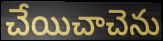
చేయిచాచెను